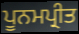
ਪੂਨਮਪ੍ਰੀਤ